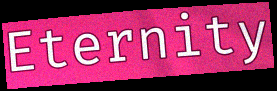
Eternity